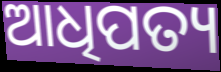
ଆଧିପତ୍ୟ